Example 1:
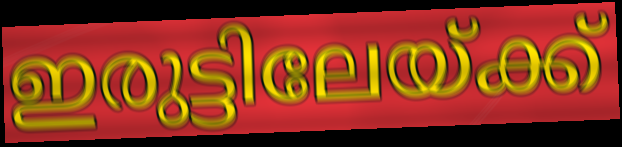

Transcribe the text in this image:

ഇരുട്ടിലേയ്ക്ക്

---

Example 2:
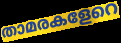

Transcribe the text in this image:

താമരകളേറെ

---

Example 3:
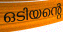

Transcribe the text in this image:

ഒടിയന്റെ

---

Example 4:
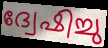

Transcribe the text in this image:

ദ്വേഷിച്ചു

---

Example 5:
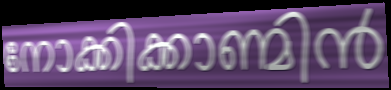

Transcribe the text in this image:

നോക്കിക്കാണ്മിൻ